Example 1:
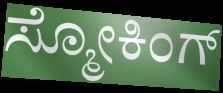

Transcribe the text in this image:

ಸ್ಮೋಕಿಂಗ್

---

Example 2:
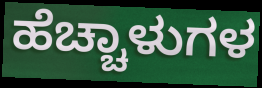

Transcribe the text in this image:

ಹೆಚ್ಚಾಳುಗಳ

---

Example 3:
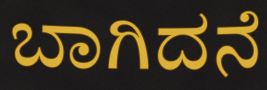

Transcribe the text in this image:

ಬಾಗಿದನೆ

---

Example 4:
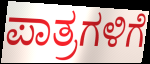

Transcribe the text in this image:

ಪಾತ್ರಗಳಿಗೆ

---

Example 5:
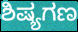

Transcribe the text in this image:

ಶಿಷ್ಯಗಣ